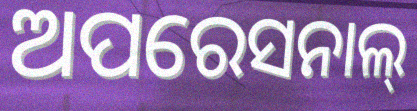
ଅପରେସନାଲ୍